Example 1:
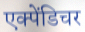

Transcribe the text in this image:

एक्पेंडिचर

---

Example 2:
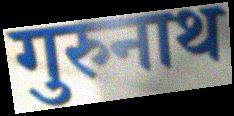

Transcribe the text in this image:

गुरुनाथ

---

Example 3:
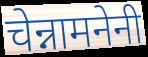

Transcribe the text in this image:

चेन्नामनेनी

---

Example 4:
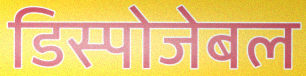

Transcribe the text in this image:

डिस्पोजेबल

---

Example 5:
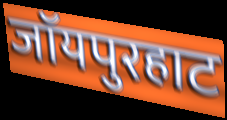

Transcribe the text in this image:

जॉयपुरहाट